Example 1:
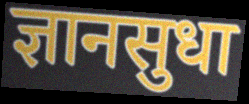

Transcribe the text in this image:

ज्ञानसुधा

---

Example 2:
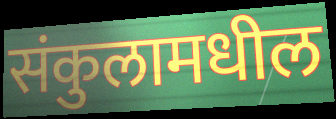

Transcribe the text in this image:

संकुलामधील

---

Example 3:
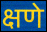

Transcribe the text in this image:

क्षणे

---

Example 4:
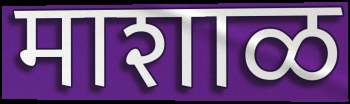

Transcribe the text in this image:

माशाळ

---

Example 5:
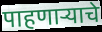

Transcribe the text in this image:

पाहणाऱ्याचे